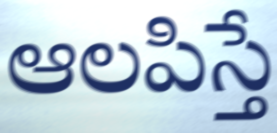
ఆలపిస్తే